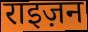
राइज़न